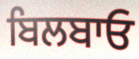
ਬਿਲਬਾਓ